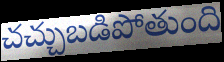
చచ్చుబడిపోతుంది